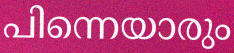
പിന്നെയാരും